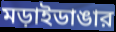
মড়াইডাঙার